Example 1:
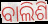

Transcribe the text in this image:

ବାଲିଶି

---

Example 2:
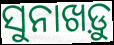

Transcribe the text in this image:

ସୁନାଖଡ଼ୁ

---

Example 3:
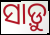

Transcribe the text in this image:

ସାଡ଼ୁ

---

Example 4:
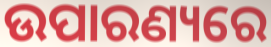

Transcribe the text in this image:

ଉପାରଣ୍ୟରେ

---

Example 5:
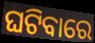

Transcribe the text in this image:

ଘଟିବାରେ